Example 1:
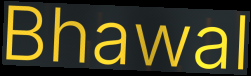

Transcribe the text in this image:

Bhawal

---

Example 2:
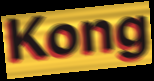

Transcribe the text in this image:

Kong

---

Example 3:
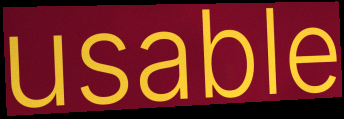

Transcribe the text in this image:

usable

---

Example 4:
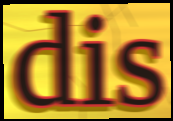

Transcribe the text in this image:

dis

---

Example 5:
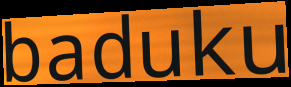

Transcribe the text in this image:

baduku